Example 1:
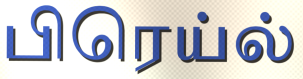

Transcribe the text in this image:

பிரெய்ல்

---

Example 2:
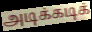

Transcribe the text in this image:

அடிக்கடிக்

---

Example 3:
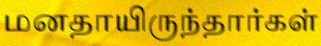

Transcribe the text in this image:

மனதாயிருந்தார்கள்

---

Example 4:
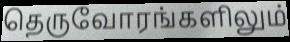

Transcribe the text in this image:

தெருவோரங்களிலும்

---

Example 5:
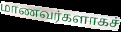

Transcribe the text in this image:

மாணவர்களாகச்